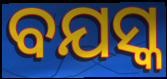
ବଯସ୍କ